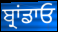
ਬ੍ਰਾਂਡਾਓ